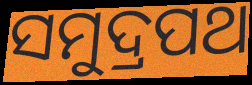
ସମୁଦ୍ରପଥ